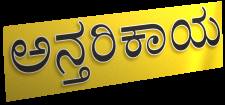
ಅನ್ತರಿಕಾಯ